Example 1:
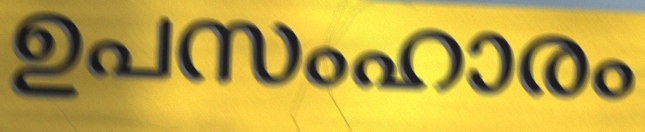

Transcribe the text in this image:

ഉപസംഹാരം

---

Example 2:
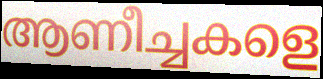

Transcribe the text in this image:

ആണീച്ചകളെ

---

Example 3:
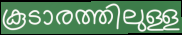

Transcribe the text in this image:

കൂടാരത്തിലുള്ള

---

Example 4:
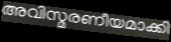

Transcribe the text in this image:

അവിസ്മരണീയമാക്കി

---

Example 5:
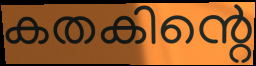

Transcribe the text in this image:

കതകിന്റെ